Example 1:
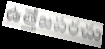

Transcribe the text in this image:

ఉత్తేజపరచు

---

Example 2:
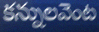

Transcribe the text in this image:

కన్నులవెంట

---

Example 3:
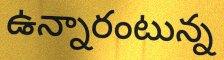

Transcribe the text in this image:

ఉన్నారంటున్న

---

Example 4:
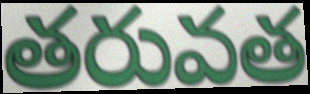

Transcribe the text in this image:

తరువత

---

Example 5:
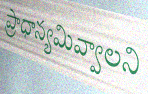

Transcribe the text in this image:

ప్రాధాన్యమివ్వాలని